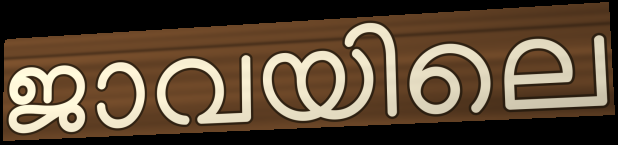
ജാവയിലെ